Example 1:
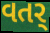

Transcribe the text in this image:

વતર્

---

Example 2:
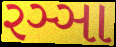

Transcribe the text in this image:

રઞ્ઞા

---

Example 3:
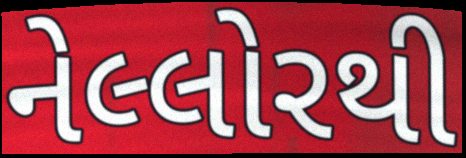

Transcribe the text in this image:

નેલ્લોરથી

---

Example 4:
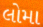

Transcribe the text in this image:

લોમા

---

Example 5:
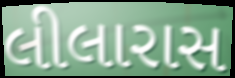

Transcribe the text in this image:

લીલારાસ